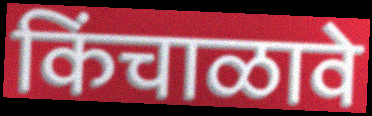
किंचाळावे